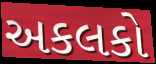
અકલકો